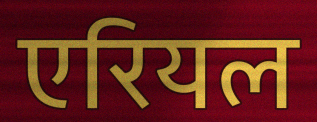
एरियल